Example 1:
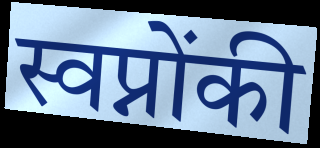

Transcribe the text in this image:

स्वप्नोंकी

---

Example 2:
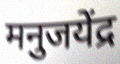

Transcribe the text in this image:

मनुजयेंद्र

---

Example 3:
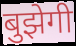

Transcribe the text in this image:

बुझेगी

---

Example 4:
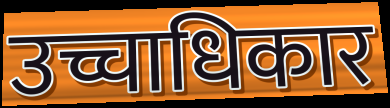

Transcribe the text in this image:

उच्चाधिकार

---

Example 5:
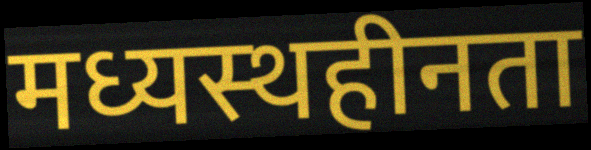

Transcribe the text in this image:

मध्यस्थहीनता